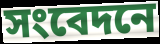
সংবেদনে